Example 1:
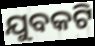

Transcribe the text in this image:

ଯୁବକଟି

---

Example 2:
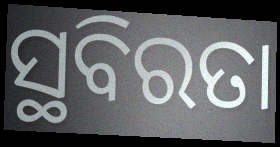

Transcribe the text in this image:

ସ୍ଥବିରତା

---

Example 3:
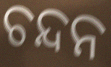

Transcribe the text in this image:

ଚନ୍ଦନ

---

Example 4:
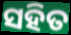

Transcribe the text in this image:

ସହିତ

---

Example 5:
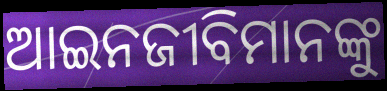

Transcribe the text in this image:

ଆଇନଜୀବିମାନଙ୍କୁ